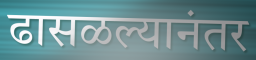
ढासळल्यानंतर